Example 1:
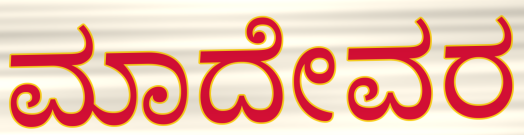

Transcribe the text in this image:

ಮಾದೇವರ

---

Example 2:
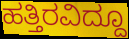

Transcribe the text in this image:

ಹತ್ತಿರವಿದ್ದೂ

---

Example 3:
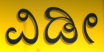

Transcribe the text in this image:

ವಿಡೀ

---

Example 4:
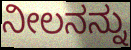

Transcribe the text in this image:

ನೀಲನನ್ನು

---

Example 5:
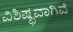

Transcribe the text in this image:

ವಿಶಿಷ್ಟವಾಗಿವೆ